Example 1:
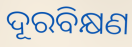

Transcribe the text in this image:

ଦୂରବିକ୍ଷଣ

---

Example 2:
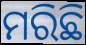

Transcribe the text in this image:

ମରିଛି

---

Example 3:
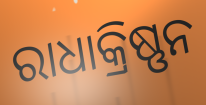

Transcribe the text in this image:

ରାଧାକ୍ରିଷ୍ଣନ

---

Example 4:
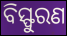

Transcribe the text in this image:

ବିସ୍ଫୁରଣ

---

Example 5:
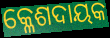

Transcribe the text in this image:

କ୍ଳେଶଦାୟକ